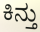
ಕಿನ್ತು